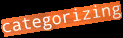
categorizing